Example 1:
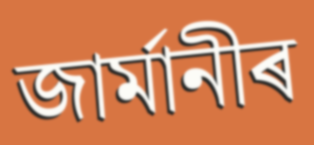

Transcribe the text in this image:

জাৰ্মানীৰ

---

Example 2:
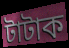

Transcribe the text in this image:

টাটাক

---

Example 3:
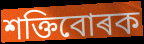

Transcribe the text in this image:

শক্তিবোৰক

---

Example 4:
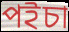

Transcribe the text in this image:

পইচা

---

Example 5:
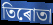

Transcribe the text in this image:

তিৰোতা